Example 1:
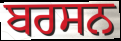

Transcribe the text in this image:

ਬਰਸਨ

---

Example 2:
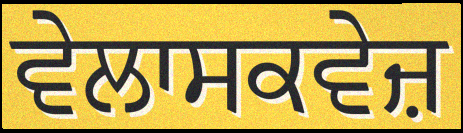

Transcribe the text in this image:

ਵੇਲਾਸਕਵੇਜ਼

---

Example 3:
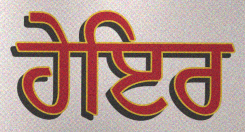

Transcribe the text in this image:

ਹੇਇਰ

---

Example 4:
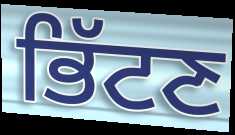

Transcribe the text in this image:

ਭਿੱਟਣ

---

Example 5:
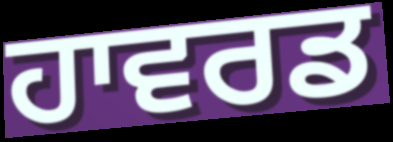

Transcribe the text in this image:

ਹਾਵਰਡ